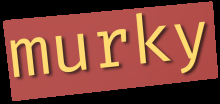
murky